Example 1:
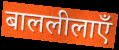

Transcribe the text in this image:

बाललीलाएँ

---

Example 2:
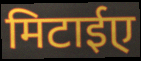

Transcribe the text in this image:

मिटाईए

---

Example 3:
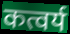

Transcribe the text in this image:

कत्वर्य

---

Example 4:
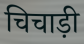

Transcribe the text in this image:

चिचाड़ी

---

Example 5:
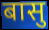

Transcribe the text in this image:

बासु